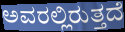
ಅವರಲ್ಲಿರುತ್ತದೆ